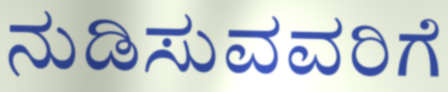
ನುಡಿಸುವವರಿಗೆ